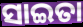
ସାଇତା